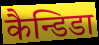
कैन्डिडा